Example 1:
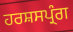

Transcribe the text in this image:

ਹਰਸ਼ਸਪ੍ਰੰਗ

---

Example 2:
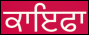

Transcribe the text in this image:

ਕਾਇਫਾ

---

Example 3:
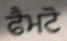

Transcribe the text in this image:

ਫੈਮਟੋ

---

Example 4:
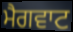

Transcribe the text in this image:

ਮੈਗਵਾਟ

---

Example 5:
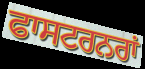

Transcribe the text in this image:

ਫਾਸਟਰਨਰਾਂ